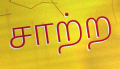
சாற்ற